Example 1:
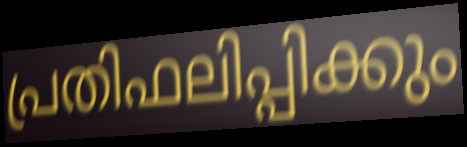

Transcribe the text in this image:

പ്രതിഫലിപ്പിക്കും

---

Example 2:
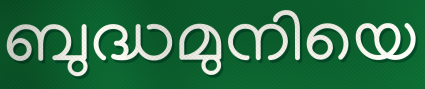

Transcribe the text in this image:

ബുദ്ധമുനിയെ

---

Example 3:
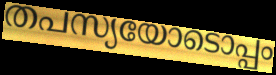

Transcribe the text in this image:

തപസ്യയോടൊപ്പം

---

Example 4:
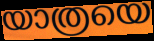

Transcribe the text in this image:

യാത്രയെ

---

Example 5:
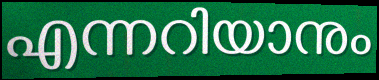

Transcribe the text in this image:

എന്നറിയാനും